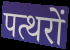
पत्थरों